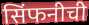
सिंफनीची